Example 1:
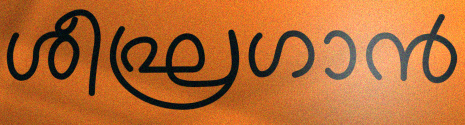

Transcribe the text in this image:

ശീഘ്രഗാൻ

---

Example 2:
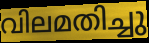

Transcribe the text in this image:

വിലമതിച്ചു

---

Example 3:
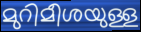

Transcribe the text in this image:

മുറിമീശയുള്ള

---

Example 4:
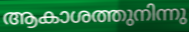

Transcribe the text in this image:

ആകാശത്തുനിന്നു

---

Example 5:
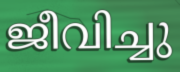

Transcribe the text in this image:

ജീവിച്ചു